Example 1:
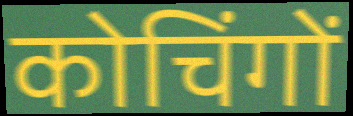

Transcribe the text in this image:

कोचिंगों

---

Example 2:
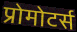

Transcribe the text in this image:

प्रोमोटर्स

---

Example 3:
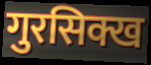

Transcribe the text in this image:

गुरसिक्ख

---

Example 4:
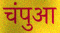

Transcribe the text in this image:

चंपुआ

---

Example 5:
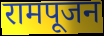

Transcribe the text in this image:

रामपूजन